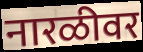
नारळीवर